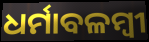
ଧର୍ମାବଳମ୍ବୀ